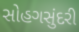
સોહગસુંદરી